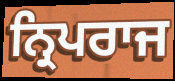
ਨ੍ਰਿਪਰਾਜ